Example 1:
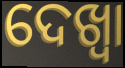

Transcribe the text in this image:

ଦେଖ୍ବା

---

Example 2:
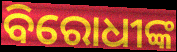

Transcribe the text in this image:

ବିରୋଧୀଙ୍କ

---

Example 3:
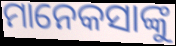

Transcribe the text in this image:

ମାନେକସାଙ୍କୁ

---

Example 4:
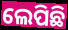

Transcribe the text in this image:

ଲେପିଛି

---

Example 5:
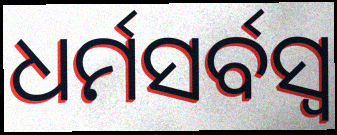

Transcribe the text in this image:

ଧର୍ମସର୍ବସ୍ୱ